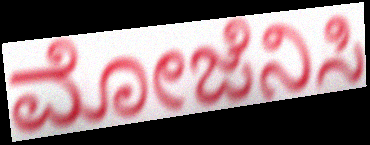
ಮೋಜೆನಿಸಿ